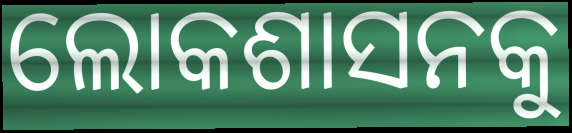
ଲୋକଶାସନକୁ